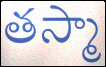
తస్మా